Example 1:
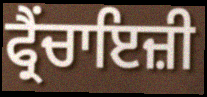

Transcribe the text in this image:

ਫ੍ਰੈਂਚਾਇਜ਼ੀ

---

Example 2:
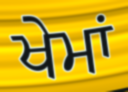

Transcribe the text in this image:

ਖੇਮਾਂ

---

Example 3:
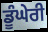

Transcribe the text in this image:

ਡੂੰਘੇਰੀ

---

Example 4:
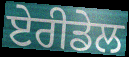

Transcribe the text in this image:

ਏਰੀਡੇਲ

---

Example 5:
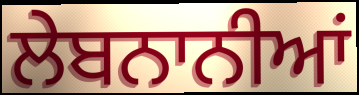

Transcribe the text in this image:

ਲੇਬਨਾਨੀਆਂ